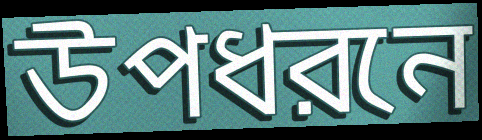
উপধরনে